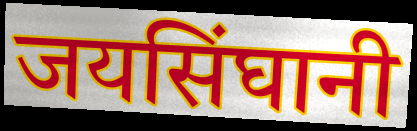
जयसिंघानी